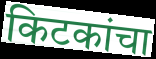
किटकांचा